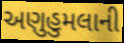
અણુહુમલાની